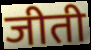
जीती